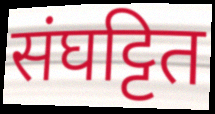
संघट्टित